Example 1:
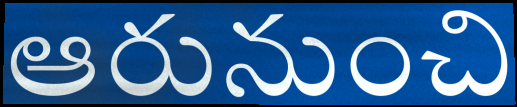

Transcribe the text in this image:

ఆరునుంచి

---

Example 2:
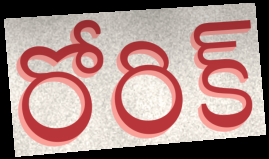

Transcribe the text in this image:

రోరిక్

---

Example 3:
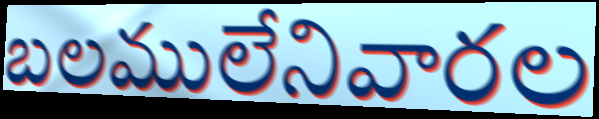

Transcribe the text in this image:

బలములేనివారల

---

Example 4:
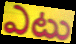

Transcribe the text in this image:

ఎటు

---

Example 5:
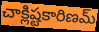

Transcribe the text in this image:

చాక్లిష్టకారిణమ్